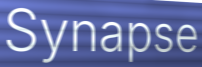
Synapse